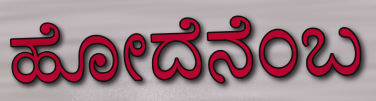
ಹೋದೆನೆಂಬ